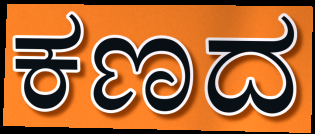
ಕಣದ